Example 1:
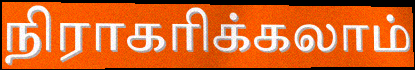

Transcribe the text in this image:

நிராகரிக்கலாம்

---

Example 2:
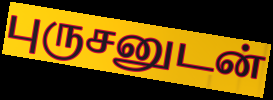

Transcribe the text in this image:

புருசனுடன்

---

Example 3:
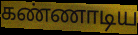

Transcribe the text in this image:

கண்ணாடிய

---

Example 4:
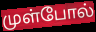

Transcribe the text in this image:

முள்போல்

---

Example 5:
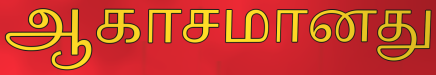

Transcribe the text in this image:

ஆகாசமானது